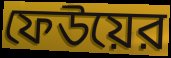
ফেউয়ের